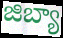
జిబ్యా